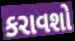
કરાવશો